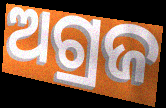
ଅଗ୍ରଜ